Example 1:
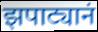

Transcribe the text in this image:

झपाट्यानं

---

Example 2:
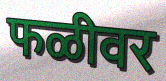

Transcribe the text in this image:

फळीवर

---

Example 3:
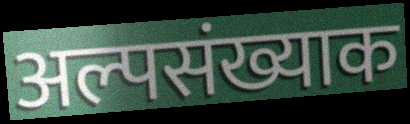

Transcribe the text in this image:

अल्पसंख्याक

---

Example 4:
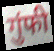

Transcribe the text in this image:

गुंफी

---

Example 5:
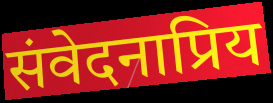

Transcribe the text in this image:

संवेदनाप्रिय